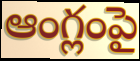
ఆంగ్లంపై